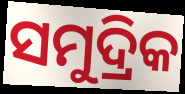
ସମୁଦ୍ରିକ